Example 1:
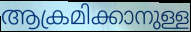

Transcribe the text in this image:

ആക്രമിക്കാനുള്ള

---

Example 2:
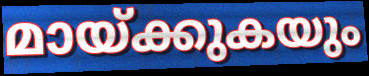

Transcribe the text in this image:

മായ്ക്കുകയും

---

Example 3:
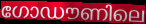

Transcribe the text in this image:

ഗോഡൗണിലെ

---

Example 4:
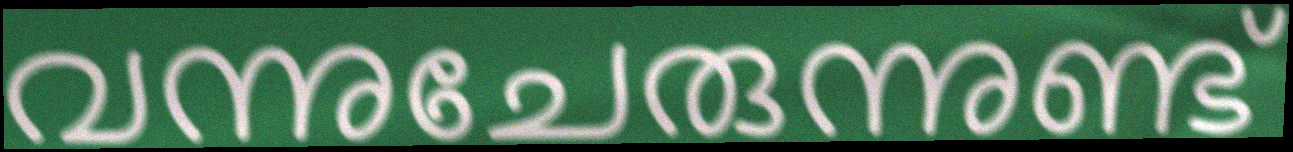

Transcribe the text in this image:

വന്നുചേരുന്നുണ്ട്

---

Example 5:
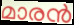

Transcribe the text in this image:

മാരൻ